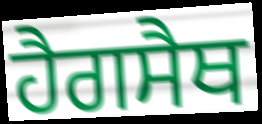
ਹੈਗਸੈਥ